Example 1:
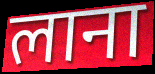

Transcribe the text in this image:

लाना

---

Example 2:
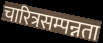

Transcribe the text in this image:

चारित्रसम्पन्नता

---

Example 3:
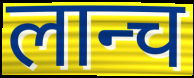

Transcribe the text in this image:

लान्‍च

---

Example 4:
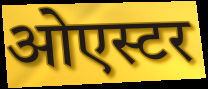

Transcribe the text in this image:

ओएस्टर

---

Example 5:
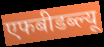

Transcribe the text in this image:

एफबीडब्ल्यू